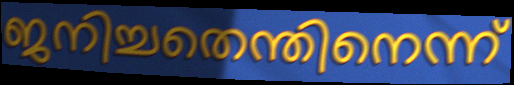
ജനിച്ചതെന്തിനെന്ന്